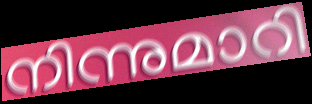
നിന്നുമാറി